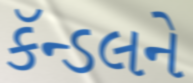
કૅન્ડલને